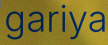
gariya